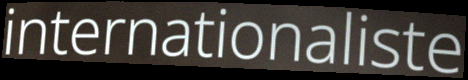
internationaliste